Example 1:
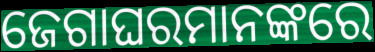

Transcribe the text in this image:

ଜେଗାଘରମାନଙ୍କରେ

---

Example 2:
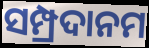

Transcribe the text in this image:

ସମ୍ପ୍ରଦାନମ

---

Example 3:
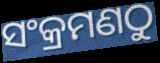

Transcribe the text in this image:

ସଂକ୍ରମଣଠୁ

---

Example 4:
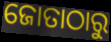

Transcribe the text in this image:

ଜୋତାଠାରୁ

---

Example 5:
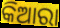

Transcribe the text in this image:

କିଆରା